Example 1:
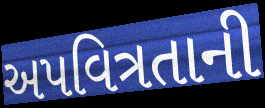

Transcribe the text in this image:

અપવિત્રતાની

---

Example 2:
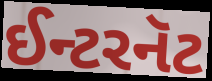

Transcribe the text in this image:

ઈન્ટરનૅટ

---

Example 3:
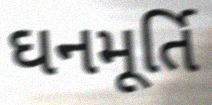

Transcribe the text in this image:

ઘનમૂર્તિ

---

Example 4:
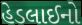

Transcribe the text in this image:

હેડલાઈનો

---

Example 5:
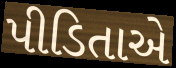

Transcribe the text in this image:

પીડિતાએ